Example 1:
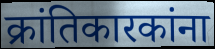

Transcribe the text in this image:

क्रांतिकारकांना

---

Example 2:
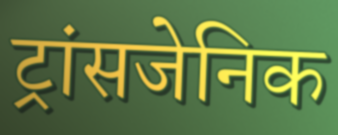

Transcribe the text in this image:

ट्रांसजेनिक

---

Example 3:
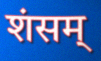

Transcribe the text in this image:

शंसम्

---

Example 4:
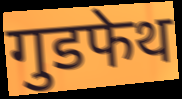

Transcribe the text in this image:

गुडफेथ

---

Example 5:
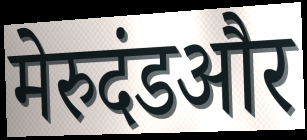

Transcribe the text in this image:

मेरुदंडऔर